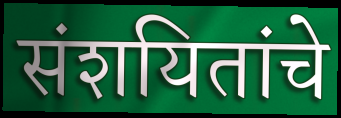
संशयितांचे